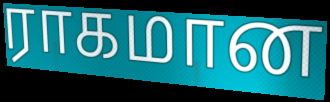
ராகமான